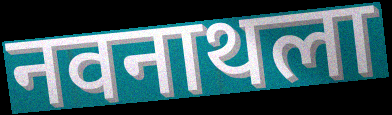
नवनाथला